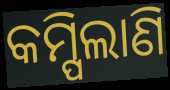
କମ୍ପିଲାଣି